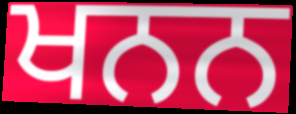
ਖਨਨ